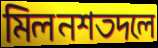
মিলনশতদলে